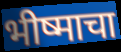
भीष्माचा